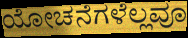
ಯೋಚನೆಗಳೆಲ್ಲವೂ